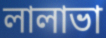
লালাভা